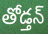
తోడ్తన్